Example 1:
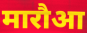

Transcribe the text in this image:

मारौआ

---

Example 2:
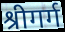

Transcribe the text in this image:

श्रीगर्ग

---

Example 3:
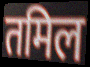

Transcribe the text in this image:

तमिल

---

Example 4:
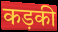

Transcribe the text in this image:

कड़की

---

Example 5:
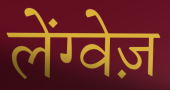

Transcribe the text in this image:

लेंग्वेज़